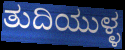
ತುದಿಯುಳ್ಳ